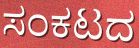
ಸಂಕಟದ